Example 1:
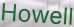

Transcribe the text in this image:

Howell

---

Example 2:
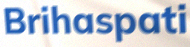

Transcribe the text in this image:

Brihaspati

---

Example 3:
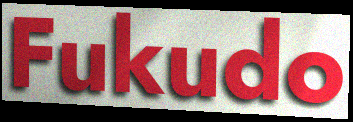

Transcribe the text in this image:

Fukudo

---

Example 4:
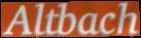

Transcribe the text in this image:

Altbach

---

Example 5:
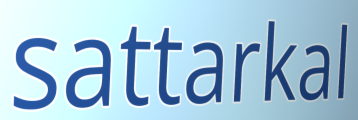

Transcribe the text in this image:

sattarkal